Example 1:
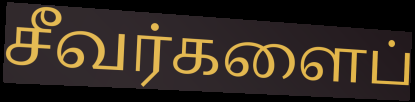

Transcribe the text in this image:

சீவர்களைப்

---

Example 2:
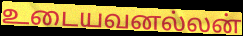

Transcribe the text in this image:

உடையவனல்லன்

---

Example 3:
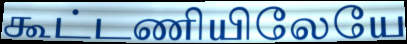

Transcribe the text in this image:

கூட்டணியிலேயே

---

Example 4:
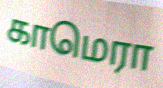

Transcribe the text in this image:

காமெரா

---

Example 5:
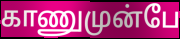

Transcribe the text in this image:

காணுமுன்பே